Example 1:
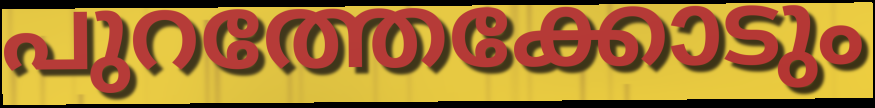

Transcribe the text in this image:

പുറത്തേക്കോടും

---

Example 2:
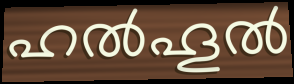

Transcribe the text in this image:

ഹൽഹൂൽ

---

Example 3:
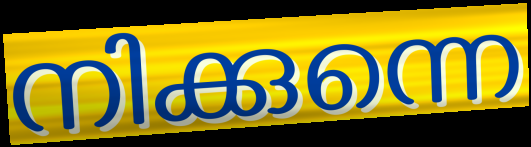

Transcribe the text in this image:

നിക്കുന്നെ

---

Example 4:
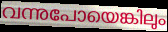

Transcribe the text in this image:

വന്നുപോയെങ്കിലും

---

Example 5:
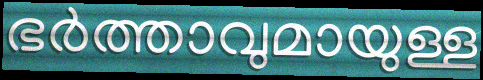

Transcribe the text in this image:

ഭർത്താവുമായുള്ള